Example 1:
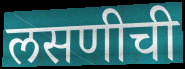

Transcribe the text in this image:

लसणीची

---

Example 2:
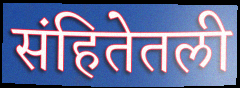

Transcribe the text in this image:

संहितेतली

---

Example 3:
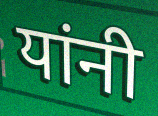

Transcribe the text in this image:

यांनी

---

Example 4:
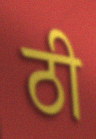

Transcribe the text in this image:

ठी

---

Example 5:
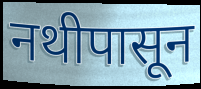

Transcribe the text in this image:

नथीपासून